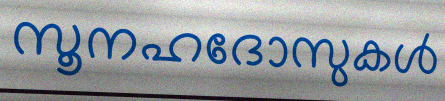
സൂനഹദോസുകൾ